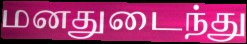
மனதுடைந்து